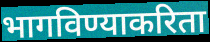
भागविण्याकरिता